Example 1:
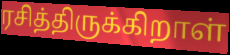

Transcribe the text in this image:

ரசித்திருக்கிறாள்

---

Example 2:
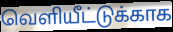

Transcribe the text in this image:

வெளியீட்டுக்காக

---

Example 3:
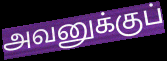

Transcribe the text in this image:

அவனுக்குப்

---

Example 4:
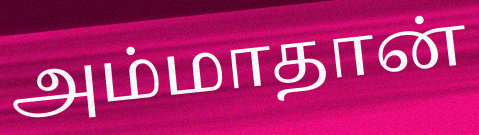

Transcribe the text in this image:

அம்மாதான்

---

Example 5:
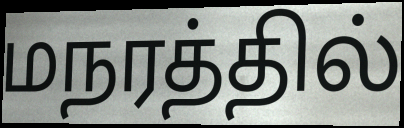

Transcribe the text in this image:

மநரத்தில்